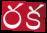
రక